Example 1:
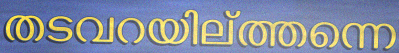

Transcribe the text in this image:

തടവറയില്ത്തന്നെ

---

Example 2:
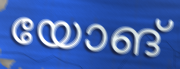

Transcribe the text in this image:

യോങ്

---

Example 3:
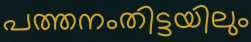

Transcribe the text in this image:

പത്തനംതിട്ടയിലും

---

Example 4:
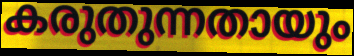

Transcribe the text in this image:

കരുതുന്നതായും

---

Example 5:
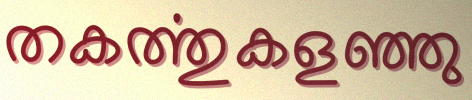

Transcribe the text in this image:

തകൎത്തുകളഞ്ഞു